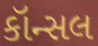
કૉન્સલ